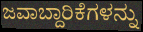
ಜವಾಬ್ದಾರಿಕೆಗಳನ್ನು